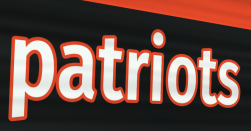
patriots